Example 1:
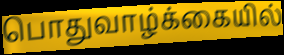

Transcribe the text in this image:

பொதுவாழ்க்கையில்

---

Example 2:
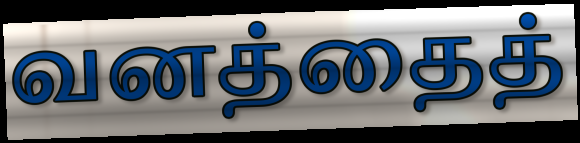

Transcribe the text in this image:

வனத்தைத்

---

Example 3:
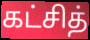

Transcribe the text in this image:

கட்சித்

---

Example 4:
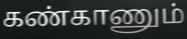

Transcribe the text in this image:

கண்காணும்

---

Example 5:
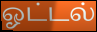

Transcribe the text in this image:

ஓட்டல்